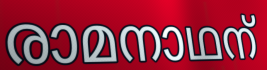
രാമനാഥന്